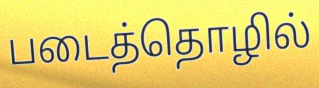
படைத்தொழில்